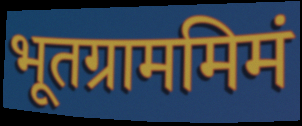
भूतग्राममिमं